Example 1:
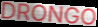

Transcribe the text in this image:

DRONGO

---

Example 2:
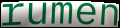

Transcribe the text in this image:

rumen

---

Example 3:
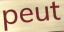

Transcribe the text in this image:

peut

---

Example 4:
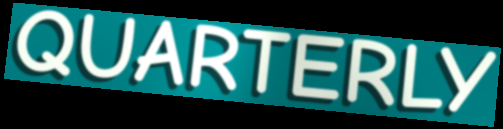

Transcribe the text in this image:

QUARTERLY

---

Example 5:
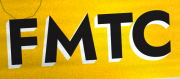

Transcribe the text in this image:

FMTC